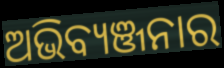
ଅଭିବ୍ୟଞ୍ଜନାର